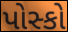
પોસ્કો